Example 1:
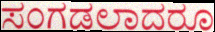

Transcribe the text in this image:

ಸಂಗಡಲಾದರೂ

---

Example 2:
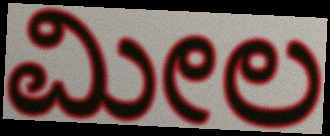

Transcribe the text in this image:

ಮೀಲ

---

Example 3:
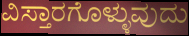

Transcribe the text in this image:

ವಿಸ್ತಾರಗೊಳ್ಳುವುದು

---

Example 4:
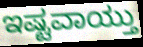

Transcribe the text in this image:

ಇಷ್ಟವಾಯ್ತು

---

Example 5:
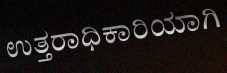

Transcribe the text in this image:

ಉತ್ತರಾಧಿಕಾರಿಯಾಗಿ